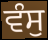
ਵੰਸੁ